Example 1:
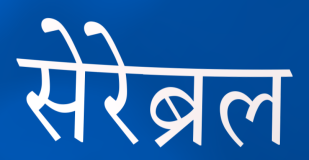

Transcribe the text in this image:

सेरेब्रल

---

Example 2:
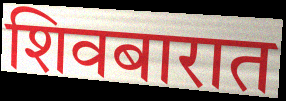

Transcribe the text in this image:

शिवबारात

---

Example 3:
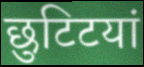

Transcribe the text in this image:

छुटिटयां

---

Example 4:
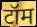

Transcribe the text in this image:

टॉम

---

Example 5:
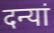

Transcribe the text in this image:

दन्यां